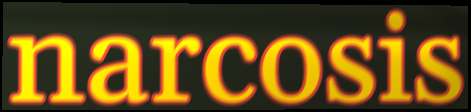
narcosis